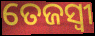
ତେଜସ୍ବୀ